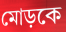
মোড়কে